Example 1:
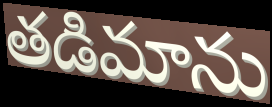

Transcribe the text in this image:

తడిమాను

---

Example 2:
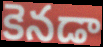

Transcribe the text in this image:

కెనడా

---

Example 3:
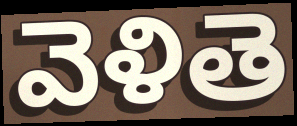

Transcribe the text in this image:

వెళితె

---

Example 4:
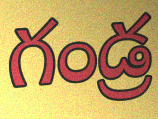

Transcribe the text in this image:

గండ్ర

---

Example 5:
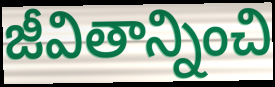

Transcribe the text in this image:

జీవితాన్నించి